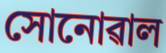
সোনোৱাল